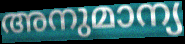
അനുമാന്യ